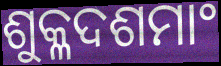
ଶୁକ୍ଳଦଶମାଂ